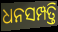
ଧନସମ୍ପତ୍ତି